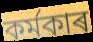
কৰ্মকাৰ